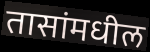
तासांमधील